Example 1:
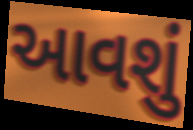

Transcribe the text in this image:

આવશું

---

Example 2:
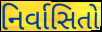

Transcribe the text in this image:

નિર્વાસિતો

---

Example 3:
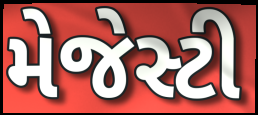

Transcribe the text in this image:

મેજેસ્ટી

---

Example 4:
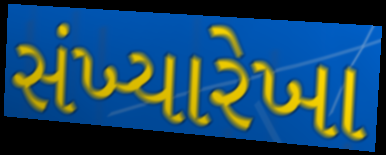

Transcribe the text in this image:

સંખ્યારેખા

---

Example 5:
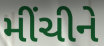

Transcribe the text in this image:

મીંચીને